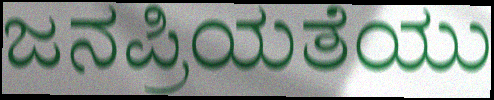
ಜನಪ್ರಿಯತೆಯು